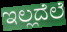
ಇಲ್ಲದೆಲೆ